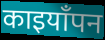
काइयाँपन